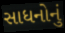
સાધનોનું